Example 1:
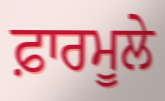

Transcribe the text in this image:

ਫ਼ਾਰਮੂਲੇ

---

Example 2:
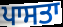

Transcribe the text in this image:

ਪਾਸਤਾ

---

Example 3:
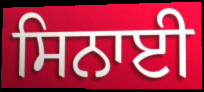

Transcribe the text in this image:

ਸਿਨਾਈ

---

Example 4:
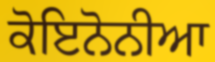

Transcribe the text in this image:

ਕੋਇਨੋਨੀਆ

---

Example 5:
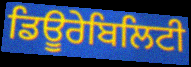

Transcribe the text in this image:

ਡਿਊਰੇਬਿਲਿਟੀ